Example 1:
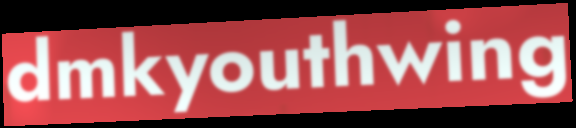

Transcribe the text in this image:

dmkyouthwing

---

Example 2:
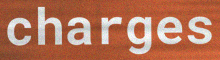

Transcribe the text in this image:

charges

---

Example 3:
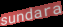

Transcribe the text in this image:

sundara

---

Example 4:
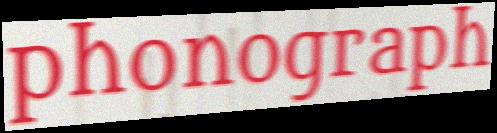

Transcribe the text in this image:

phonograph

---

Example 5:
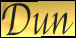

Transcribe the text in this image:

Dun